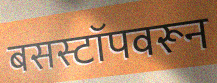
बसस्टॉपवरून